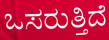
ಒಸರುತ್ತಿದೆ